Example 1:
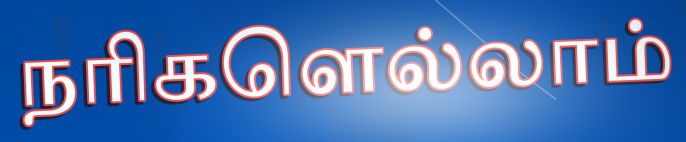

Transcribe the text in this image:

நரிகளெல்லாம்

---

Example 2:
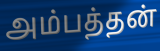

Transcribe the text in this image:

அம்பத்தன்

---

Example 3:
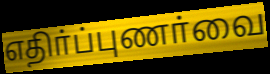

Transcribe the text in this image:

எதிர்ப்புணர்வை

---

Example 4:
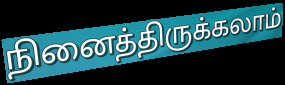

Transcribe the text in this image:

நினைத்திருக்கலாம்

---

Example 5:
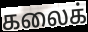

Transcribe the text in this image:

கலைக்